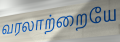
வரலாற்றையே